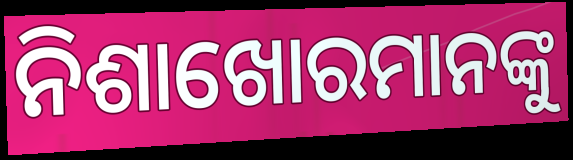
ନିଶାଖୋରମାନଙ୍କୁ